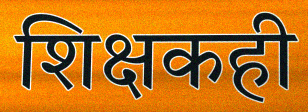
शिक्षकही